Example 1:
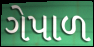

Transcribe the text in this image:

ગેપાળ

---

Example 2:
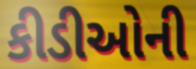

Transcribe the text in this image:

કીડીઓની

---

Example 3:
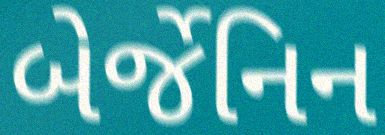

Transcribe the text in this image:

બેર્જેનિન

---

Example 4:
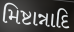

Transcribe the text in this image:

મિષ્ટાન્નાદિ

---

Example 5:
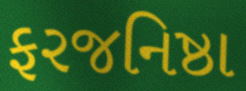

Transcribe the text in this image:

ફરજનિષ્ઠા